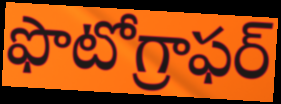
ఫొటోగ్రాఫర్